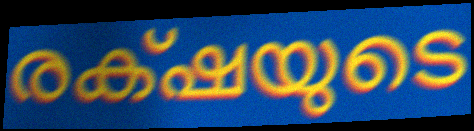
രക്‌ഷയുടെ